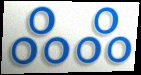
ஃஃ